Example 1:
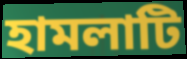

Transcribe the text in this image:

হামলাটি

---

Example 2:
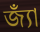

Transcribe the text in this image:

জ্যাঁ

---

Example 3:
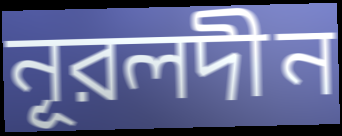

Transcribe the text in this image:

নূরলদীন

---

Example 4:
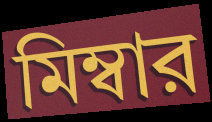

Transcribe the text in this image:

মিম্বার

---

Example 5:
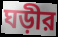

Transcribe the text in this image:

ঘড়ীর